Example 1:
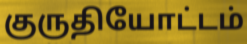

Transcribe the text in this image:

குருதியோட்டம்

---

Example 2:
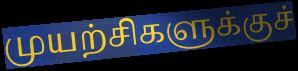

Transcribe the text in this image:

முயற்சிகளுக்குச்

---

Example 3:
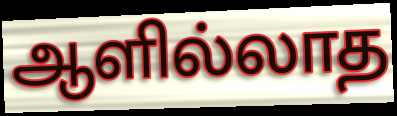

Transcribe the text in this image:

ஆளில்லாத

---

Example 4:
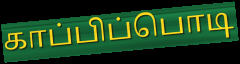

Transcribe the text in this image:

காப்பிப்பொடி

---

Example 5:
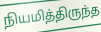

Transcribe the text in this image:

நியமித்திருந்த